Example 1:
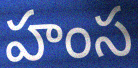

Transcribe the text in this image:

హంస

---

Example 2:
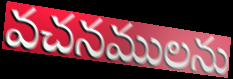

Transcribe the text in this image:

వచనములను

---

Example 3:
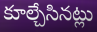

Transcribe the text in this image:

కూల్చేసినట్లు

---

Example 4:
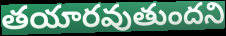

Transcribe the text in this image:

తయారవుతుందని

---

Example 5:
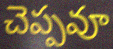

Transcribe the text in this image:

చెప్పవూ